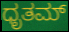
ಧೃತಮ್